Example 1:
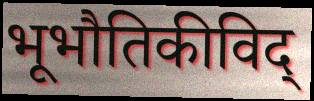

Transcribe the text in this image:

भूभौतिकीविद्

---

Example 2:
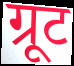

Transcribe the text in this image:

ग्रूट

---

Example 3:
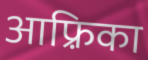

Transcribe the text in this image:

आफ़्रिका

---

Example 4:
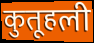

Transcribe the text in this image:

कुतूहली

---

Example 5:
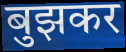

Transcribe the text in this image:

बुझकर